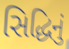
સિદ્ધિનું